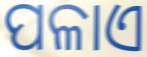
ପଳାଏ